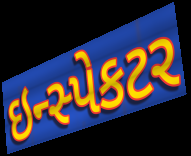
ઇન્સ્પેકટર